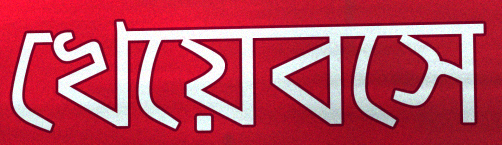
খেয়েবসে